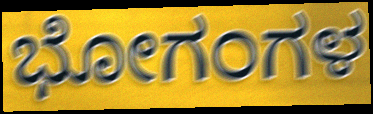
ಭೋಗಂಗಳ